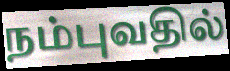
நம்புவதில்